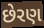
છેરણ